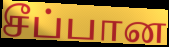
சீப்பான